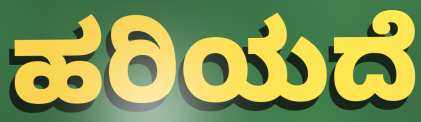
ಹರಿಯದೆ